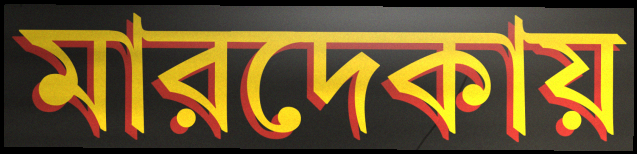
মারদেকায়